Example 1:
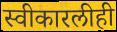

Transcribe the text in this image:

स्वीकारलीही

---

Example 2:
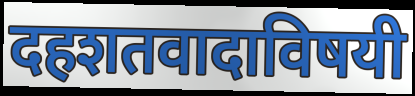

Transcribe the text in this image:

दहशतवादाविषयी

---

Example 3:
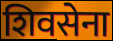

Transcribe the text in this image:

शिवसेना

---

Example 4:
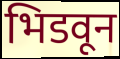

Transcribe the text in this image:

भिडवून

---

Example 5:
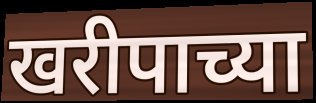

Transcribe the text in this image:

खरीपाच्या